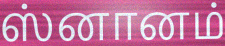
ஸ்னானம்